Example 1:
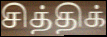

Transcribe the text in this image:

சித்திக்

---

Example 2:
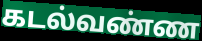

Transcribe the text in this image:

கடல்வண்ண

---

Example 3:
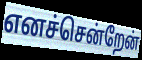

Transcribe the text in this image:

எனச்சென்றேன்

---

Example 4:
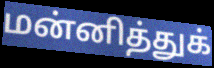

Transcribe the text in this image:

மன்னித்துக்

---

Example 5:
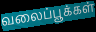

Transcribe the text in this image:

வலைப்பூக்கள்